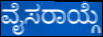
ವೈಸರಾಯ್ಗೆ